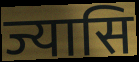
ज्यासि